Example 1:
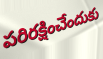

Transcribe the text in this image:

పరిరక్షించేందుకు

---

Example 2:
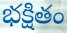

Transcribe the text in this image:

భక్షితం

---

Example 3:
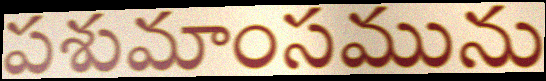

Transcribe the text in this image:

పశుమాంసమును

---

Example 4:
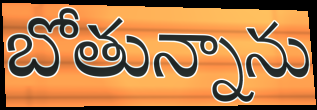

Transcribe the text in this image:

బోతున్నాను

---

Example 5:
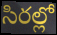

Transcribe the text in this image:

సిరల్లో